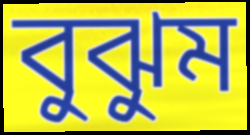
বুঝুম